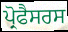
ਪ੍ਰੋਫੈਸਰਸ